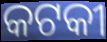
କଟକୀ